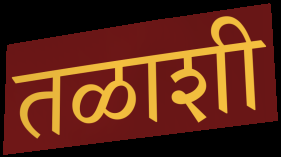
तळाशी